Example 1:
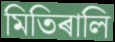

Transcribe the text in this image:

মিতিৰালি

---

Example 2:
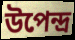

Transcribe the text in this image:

উপেন্দ্ৰ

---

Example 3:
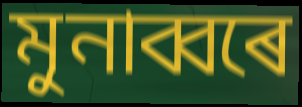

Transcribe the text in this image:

মুনাব্বৰে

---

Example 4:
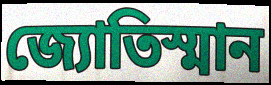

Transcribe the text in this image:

জ্যোতিস্মান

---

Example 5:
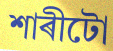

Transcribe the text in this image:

শাৰীটো